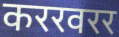
कररवरर